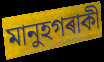
মানুহগৰাকী